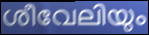
ശീവേലിയും